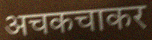
अचकचाकर